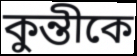
কুন্তীকে